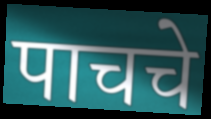
पाचचे